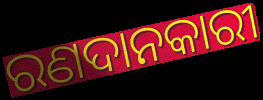
ରଣଦାନକାରୀ